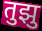
तुझु